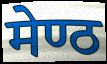
मेण्ठ